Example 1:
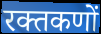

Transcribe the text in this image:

रक्तकणों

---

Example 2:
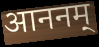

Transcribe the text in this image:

आननम्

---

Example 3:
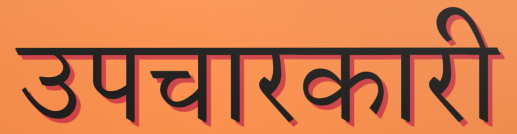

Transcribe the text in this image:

उपचारकारी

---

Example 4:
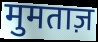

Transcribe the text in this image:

मुमताज़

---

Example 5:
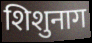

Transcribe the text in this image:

शिशुनाग